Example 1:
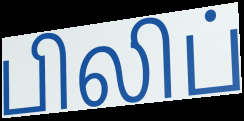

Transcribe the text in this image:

பிலிப்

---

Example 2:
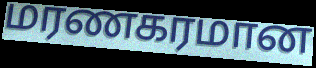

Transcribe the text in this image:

மரணகரமான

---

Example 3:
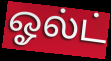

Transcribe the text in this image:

ஓல்ட்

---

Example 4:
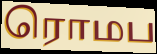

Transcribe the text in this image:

ரொமப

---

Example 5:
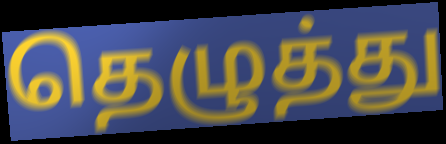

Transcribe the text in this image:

தெழுத்து